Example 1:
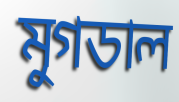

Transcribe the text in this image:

মুগডাল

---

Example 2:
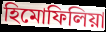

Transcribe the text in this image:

হিমোফিলিয়া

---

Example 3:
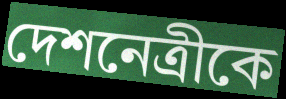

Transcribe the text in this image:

দেশনেত্রীকে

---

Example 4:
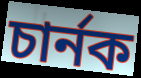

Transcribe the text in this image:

চার্নক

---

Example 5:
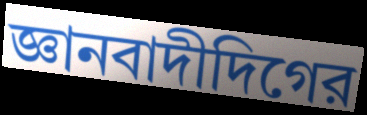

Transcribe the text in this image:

জ্ঞানবাদীদিগের